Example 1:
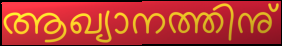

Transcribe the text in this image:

ആഖ്യാനത്തിനു്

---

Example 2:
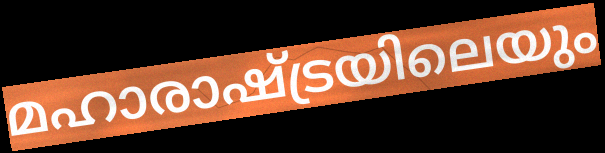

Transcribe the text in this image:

മഹാരാഷ്ട്രയിലെയും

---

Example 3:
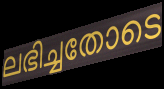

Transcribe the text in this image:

ലഭിച്ചതോടെ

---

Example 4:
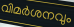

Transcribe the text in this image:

വിമർശനവും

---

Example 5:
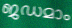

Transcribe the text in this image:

ജഡമാം